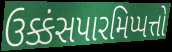
ઉક્કંસપારમિપ્પત્તો